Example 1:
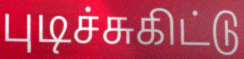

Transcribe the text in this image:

புடிச்சுகிட்டு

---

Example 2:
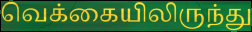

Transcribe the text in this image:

வெக்கையிலிருந்து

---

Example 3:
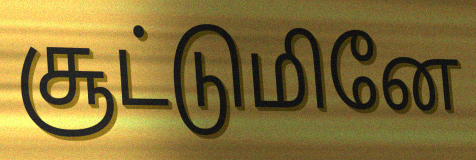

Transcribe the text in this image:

சூட்டுமினே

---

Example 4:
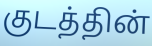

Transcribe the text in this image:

குடத்தின்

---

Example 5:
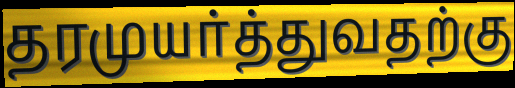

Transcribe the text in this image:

தரமுயர்த்துவதற்கு